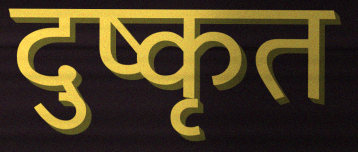
दुष्कृत